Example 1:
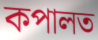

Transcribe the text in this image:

কপালত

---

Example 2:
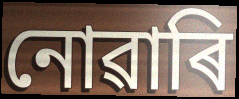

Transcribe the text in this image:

নোৱাৰি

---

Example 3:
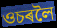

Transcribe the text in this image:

ওচৰলৈ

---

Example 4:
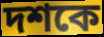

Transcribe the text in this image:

দশকে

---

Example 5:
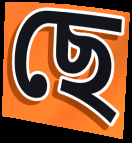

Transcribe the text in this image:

ছে